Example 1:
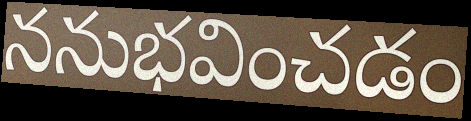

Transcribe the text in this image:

ననుభవించడం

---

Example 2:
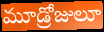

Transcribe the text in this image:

మూడ్రోజులూ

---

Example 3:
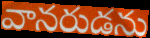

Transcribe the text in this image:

వానరుడను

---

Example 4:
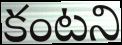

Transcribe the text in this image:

కంటని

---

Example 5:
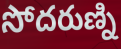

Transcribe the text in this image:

సోదరుణ్ని